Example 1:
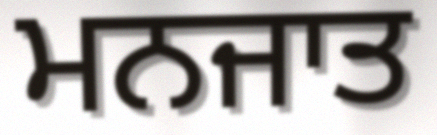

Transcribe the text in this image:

ਮਨਜਾਤ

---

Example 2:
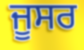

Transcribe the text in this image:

ਜੂਸਰ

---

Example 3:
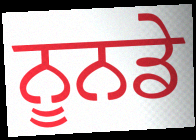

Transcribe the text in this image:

ਨੂਨਡੇ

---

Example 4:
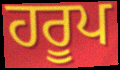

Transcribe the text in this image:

ਹਰੂਪ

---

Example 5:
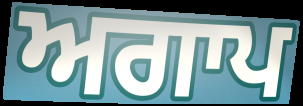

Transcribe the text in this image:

ਅਗਾਪ